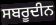
ਸਬਰੂਦੀਨ